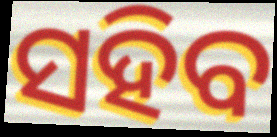
ସହିବ